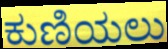
ಕುಣಿಯಲು